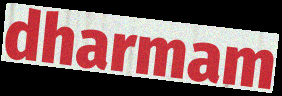
dharmam